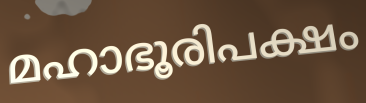
മഹാഭൂരിപക്ഷം